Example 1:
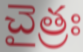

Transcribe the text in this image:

చైత్రః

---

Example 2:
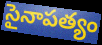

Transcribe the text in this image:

సైనాపత్యం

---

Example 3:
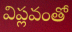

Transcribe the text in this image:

విప్లవంతో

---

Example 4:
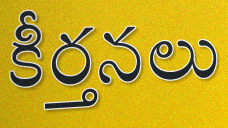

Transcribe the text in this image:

కీర్తనలు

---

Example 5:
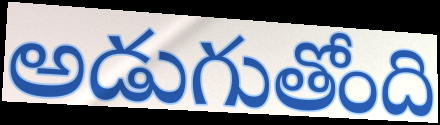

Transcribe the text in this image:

అడుగుతోంది